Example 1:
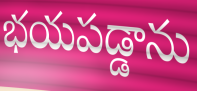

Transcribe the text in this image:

భయపడ్డాను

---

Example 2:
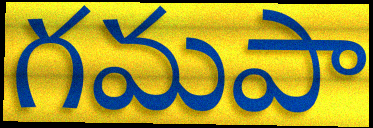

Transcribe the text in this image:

గమపా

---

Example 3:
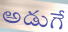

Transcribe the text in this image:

అడుగే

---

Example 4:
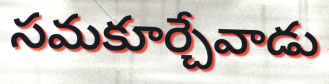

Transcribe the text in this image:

సమకూర్చేవాడు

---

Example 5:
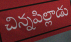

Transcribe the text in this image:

చిన్నపిల్లాడు